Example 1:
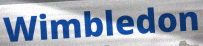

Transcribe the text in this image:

Wimbledon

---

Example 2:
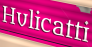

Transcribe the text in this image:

Hulicatti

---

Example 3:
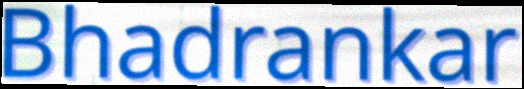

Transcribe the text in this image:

Bhadrankar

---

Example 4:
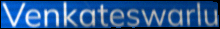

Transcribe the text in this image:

Venkateswarlu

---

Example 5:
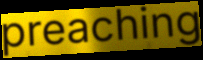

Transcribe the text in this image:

preaching